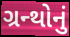
ગ્રન્થોનું